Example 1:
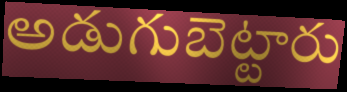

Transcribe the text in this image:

అడుగుబెట్టారు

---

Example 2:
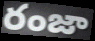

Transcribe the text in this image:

రంజా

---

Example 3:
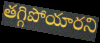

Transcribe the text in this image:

తగ్గిపోయారని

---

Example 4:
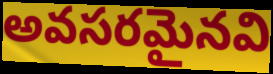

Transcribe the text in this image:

అవసరమైనవి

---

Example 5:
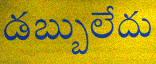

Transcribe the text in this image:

డబ్బులేదు